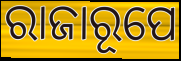
ରାଜାରୂପେ